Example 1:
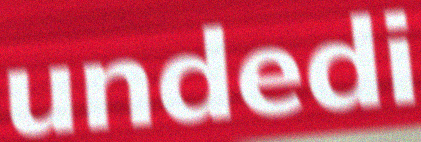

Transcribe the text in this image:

undedi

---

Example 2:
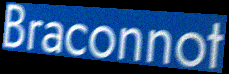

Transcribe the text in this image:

Braconnot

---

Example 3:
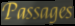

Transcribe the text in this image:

Passages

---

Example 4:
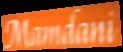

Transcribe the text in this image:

Mamdani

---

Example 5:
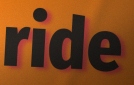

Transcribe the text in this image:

ride